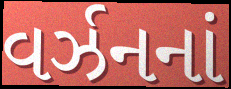
વર્ઝનનાં